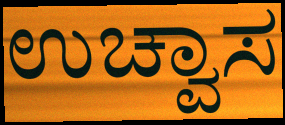
ಉಚ್ವಾಸ